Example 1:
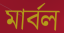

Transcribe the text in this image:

মাৰ্বল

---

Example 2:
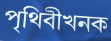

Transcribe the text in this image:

পৃথিবীখনক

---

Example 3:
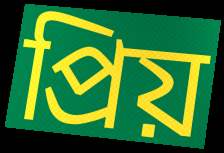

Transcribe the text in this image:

প্ৰিয়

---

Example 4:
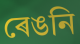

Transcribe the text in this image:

ৰেঙনি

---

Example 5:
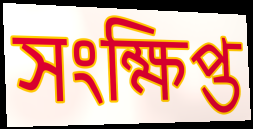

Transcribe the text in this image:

সংক্ষিপ্ত